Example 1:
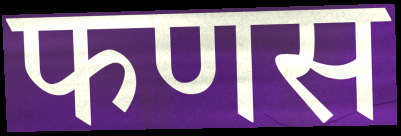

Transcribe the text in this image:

फणस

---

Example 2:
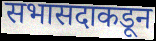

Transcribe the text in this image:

सभासदाकडून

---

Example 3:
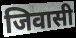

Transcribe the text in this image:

जिवासी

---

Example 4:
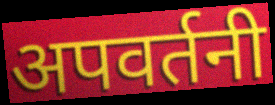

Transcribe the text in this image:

अपवर्तनी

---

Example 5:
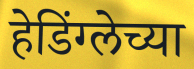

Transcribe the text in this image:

हेडिंग्लेच्या